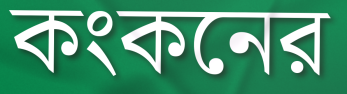
কংকনের